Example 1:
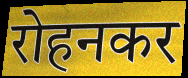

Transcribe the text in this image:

रोहनकर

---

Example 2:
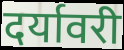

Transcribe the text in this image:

दर्यावरी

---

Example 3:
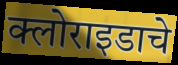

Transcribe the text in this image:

क्लोराइडाचे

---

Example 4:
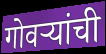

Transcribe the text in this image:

गोवऱ्यांची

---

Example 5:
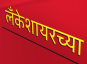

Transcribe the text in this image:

लँकेशायरच्या